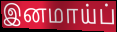
இனமாய்ப்